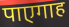
पाएगाह